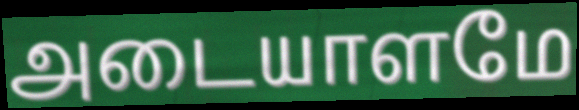
அடையாளமே